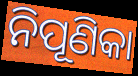
ନିପୂଣିକା